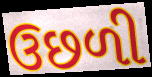
ઉછળી